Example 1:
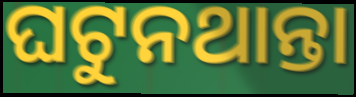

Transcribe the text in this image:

ଘଟୁନଥାନ୍ତା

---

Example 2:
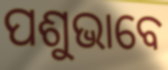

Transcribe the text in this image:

ପଶୁଭାବେ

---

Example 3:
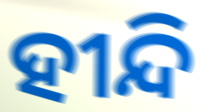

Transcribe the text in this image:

ହୀନ୍ଦି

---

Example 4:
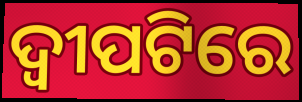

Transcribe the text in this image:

ଦ୍ୱୀପଟିରେ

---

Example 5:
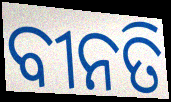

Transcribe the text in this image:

ବୀନତି